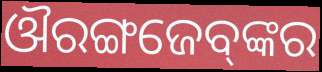
ଔରଙ୍ଗଜେବ୍‌ଙ୍କର